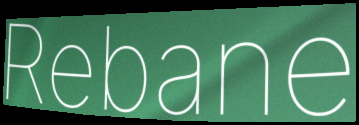
Rebane